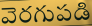
వెరగుపడి